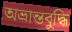
অভ্রান্তবুদ্ধি